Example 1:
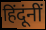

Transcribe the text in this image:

हिंदूंनीं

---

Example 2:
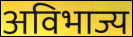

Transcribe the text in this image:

अविभाज्य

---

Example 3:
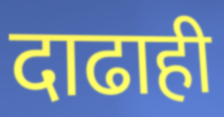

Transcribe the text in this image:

दाढाही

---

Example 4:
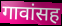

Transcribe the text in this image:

गावांसह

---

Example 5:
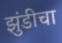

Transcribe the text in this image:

झुंडीचा